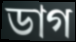
ডাগ